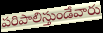
పరిపాలిస్తుండేవారు